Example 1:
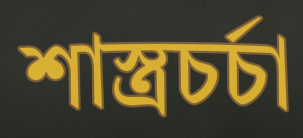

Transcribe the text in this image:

শাস্ত্রচর্চা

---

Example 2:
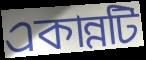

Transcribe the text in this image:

একান্নটি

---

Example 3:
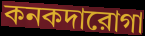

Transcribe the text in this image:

কনকদারোগা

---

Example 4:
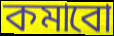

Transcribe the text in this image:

কমাবো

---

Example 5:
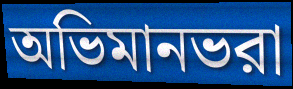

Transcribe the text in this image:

অভিমানভরা